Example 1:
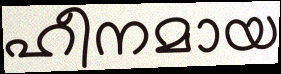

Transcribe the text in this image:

ഹീനമായ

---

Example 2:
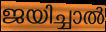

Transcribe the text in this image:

ജയിച്ചാൽ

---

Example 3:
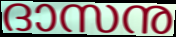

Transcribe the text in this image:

ദാസനു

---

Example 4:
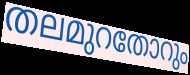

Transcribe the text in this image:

തലമുറതോറും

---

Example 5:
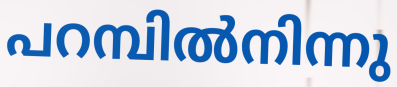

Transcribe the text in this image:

പറമ്പിൽനിന്നു